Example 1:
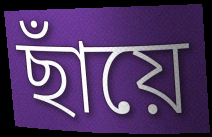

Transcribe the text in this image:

ছাঁয়ে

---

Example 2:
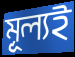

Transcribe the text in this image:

মূল্যই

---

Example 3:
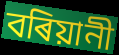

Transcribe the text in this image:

বৰিয়ানী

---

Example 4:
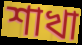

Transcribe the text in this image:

শাখা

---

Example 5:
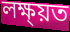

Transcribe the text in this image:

লক্ষ্য়ত